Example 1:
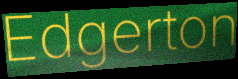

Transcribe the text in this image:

Edgerton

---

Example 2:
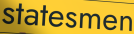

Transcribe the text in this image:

statesmen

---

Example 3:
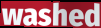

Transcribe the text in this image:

washed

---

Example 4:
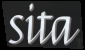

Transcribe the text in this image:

sita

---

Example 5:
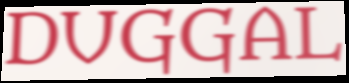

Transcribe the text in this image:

DUGGAL